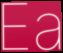
Ea